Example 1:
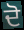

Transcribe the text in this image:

ਦੋ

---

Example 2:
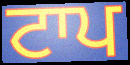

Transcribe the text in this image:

ਟਾਪ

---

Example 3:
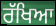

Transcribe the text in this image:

ਰੱਖਿਆ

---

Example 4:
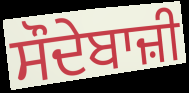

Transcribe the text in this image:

ਸੌਦੇਬਾਜ਼ੀ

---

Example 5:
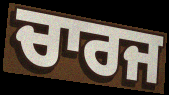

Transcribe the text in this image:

ਚਾਰਜ